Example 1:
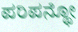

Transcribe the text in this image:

ಪರಿಪನ್ಥೋ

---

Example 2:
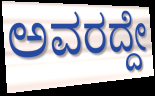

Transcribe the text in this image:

ಅವರದ್ದೇ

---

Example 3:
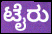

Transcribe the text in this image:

ಟೈರು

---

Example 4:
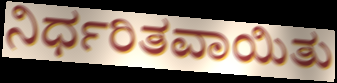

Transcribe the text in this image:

ನಿರ್ಧರಿತವಾಯಿತು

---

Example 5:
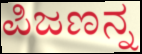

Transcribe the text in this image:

ಪಿಜಣನ್ನ